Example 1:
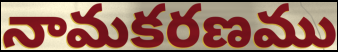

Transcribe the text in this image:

నామకరణము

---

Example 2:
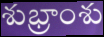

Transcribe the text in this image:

శుభ్రాంశు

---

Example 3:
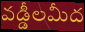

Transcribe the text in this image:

వడ్డీలమీద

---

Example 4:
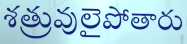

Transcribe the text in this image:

శత్రువులైపోతారు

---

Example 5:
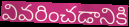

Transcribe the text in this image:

వివరించడానికి